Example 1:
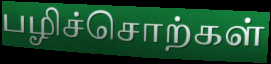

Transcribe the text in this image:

பழிச்சொற்கள்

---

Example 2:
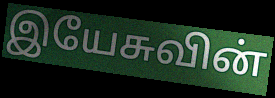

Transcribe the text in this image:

இயேசுவின்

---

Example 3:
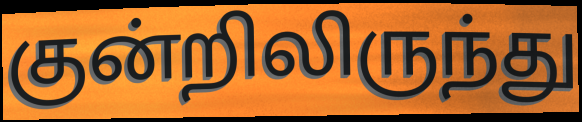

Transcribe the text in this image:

குன்றிலிருந்து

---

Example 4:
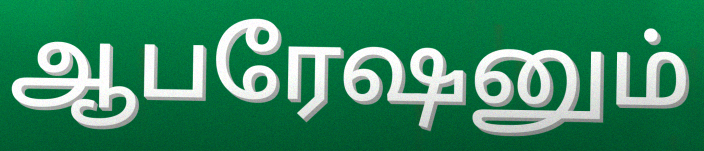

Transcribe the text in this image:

ஆபரேஷனும்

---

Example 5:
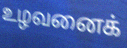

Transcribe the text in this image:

உழவனைக்